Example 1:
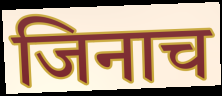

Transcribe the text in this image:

जिनाच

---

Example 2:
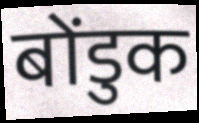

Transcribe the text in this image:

बोंडुक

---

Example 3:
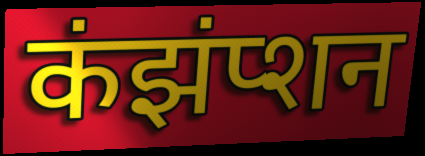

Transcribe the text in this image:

कंझंप्शन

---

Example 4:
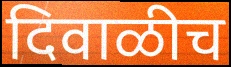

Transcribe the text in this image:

दिवाळीच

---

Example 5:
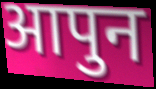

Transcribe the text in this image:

आपुन